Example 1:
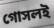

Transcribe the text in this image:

গোসলই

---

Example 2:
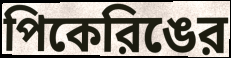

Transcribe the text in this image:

পিকেরিঙের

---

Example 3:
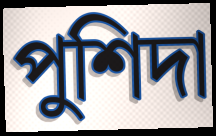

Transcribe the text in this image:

পুশিদা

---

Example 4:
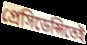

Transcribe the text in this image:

প্রেসিডেন্সিতেই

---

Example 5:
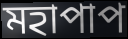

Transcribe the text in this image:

মহাপাপ